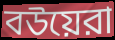
বউয়েরা